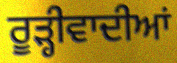
ਰੂੜ੍ਹੀਵਾਦੀਆਂ